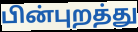
பின்புறத்து